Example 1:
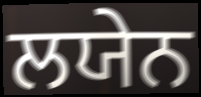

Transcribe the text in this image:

ਲਯੇਨ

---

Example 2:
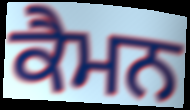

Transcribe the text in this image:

ਕੈਮਨ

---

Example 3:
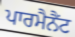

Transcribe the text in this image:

ਪਾਰਮੈਨੈਂਟ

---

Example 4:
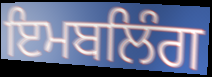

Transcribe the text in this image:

ਇਮਬਲਿੰਗ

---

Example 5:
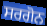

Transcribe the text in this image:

ਸਰਗੋਨ